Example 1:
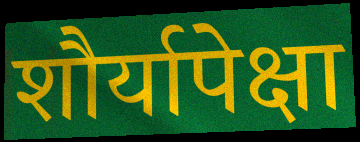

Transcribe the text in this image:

शौर्यापेक्षा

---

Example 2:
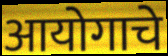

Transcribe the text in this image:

आयोगाचे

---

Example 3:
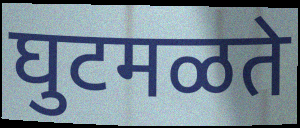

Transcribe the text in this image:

घुटमळते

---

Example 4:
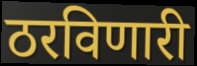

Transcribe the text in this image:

ठरविणारी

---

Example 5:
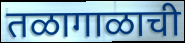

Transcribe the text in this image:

तळागाळाची